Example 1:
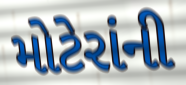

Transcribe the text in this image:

મોટેરાંની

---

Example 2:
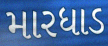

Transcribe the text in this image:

મારધાડ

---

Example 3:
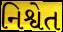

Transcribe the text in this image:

નિશ્વેત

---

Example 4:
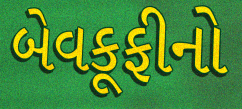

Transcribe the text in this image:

બેવકૂફીનો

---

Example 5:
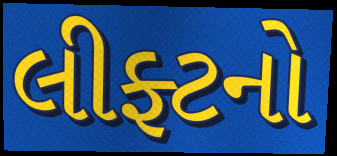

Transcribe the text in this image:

લીફ્ટનો